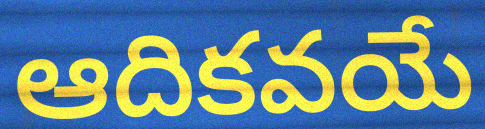
ఆదికవయే